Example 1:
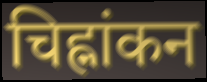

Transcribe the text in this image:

चिह्नांकन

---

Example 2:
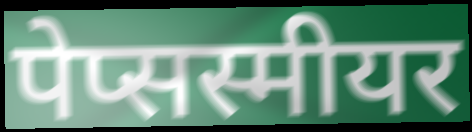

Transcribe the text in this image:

पेप्सस्मीयर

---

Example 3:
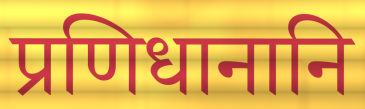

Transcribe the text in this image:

प्रणिधानानि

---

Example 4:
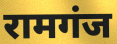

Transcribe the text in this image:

रामगंज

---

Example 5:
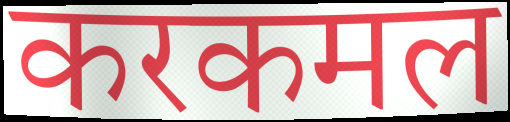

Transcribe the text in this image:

करकमल